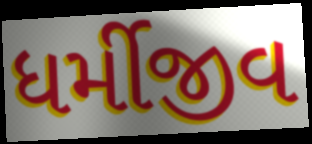
ધર્મીજીવ